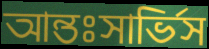
আন্তঃসার্ভিস